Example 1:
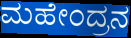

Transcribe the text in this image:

ಮಹೇಂದ್ರನ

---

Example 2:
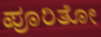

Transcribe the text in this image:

ಪೂರಿತೋ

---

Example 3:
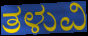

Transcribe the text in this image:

ತಳುವಿ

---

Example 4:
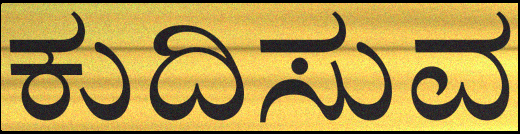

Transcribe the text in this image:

ಕುದಿಸುವ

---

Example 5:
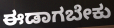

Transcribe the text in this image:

ಈಡಾಗಬೇಕು